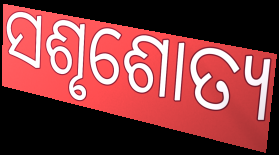
ସଶୃଶୋତ୍ୟ